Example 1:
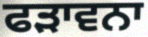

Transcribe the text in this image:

ਫੜਾਵਨਾ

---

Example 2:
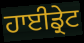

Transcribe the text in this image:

ਹਾਈਡ੍ਰੇਟ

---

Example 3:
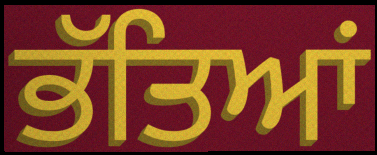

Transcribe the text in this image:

ਭੱਤਿਆਂ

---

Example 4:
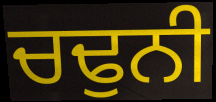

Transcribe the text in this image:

ਚਢੁਨੀ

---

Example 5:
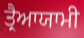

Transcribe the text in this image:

ਤ੍ਰੈਆਯਾਮੀ